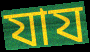
যায